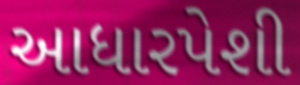
આધારપેશી